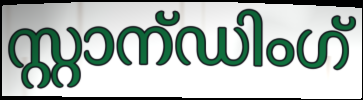
സ്റ്റാന്ഡിംഗ്